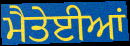
ਮੈਤੇਈਆਂ